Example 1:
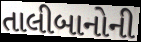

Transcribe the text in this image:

તાલીબાનોની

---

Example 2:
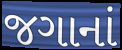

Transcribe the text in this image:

જગાનાં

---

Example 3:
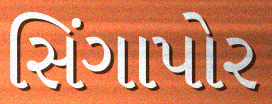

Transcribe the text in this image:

સિંગાપોર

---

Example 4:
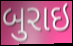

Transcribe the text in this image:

બુરાઇ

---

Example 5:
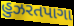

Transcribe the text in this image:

હુઝરતપાગા